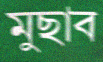
মুছাব